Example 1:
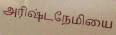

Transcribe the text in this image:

அரிஷ்டநேமியை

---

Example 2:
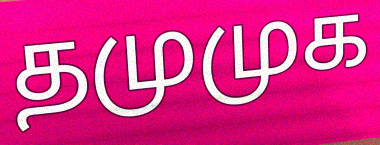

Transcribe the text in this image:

தமுமுக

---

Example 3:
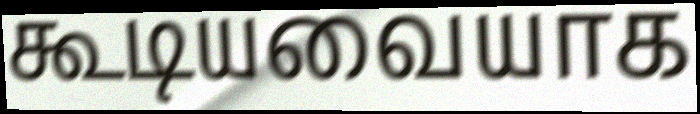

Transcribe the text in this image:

கூடியவையாக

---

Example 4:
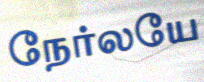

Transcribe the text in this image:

நேர்லயே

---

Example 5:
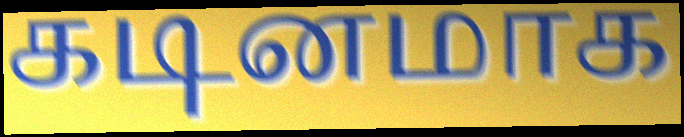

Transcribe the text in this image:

கடினமாக